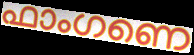
ഫാംഗണെ